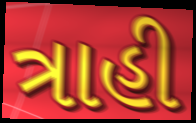
ત્રાહી